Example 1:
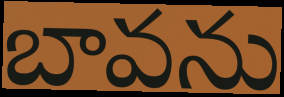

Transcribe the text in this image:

బావను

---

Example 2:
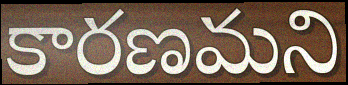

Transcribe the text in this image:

కారణమని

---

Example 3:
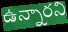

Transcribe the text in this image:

ఉన్నారని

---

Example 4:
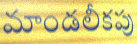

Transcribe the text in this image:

మాండలీకపు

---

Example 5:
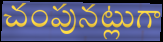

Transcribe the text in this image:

చంపునట్లుగా